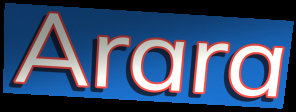
Arara